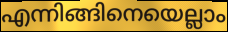
എന്നിങ്ങിനെയെല്ലാം